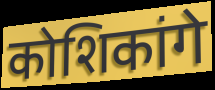
कोशिकांगे